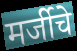
मर्जीचे